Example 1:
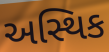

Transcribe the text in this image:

અસ્થિક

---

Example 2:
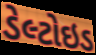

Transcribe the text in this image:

ડેલ્ટોઇડ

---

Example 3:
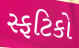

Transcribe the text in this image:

સ્ફટિકો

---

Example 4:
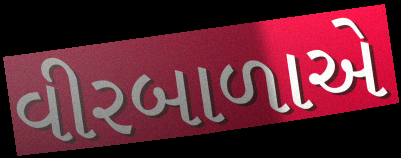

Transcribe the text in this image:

વીરબાળાએ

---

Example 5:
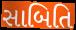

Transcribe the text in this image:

સાબિતિ